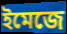
ইমেজে